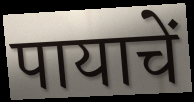
पायाचें